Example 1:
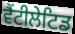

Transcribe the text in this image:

ਵੈਂਟੀਲੇਟਿਡ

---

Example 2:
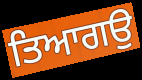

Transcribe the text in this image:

ਤਿਆਗਉ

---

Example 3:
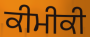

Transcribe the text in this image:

ਕੀਮੀਕੀ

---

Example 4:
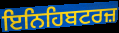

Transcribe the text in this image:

ਇਨਿਹਿਬਟਰਜ਼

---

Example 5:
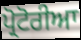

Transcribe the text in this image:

ਪ੍ਰੋਟੋਰੀਆ